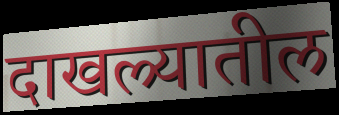
दाखल्यातील